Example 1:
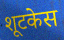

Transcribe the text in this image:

शूटकेस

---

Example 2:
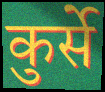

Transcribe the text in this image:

कुर्से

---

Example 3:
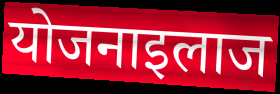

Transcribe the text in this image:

योजनाइलाज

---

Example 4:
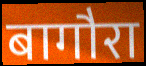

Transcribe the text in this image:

बागौरा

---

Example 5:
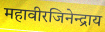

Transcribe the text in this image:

महावीरजिनेन्द्राय